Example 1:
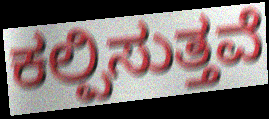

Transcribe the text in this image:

ಕಲ್ಪಿಸುತ್ತವೆ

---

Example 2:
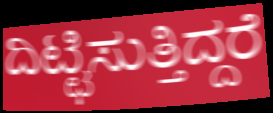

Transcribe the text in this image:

ದಿಟ್ಟಿಸುತ್ತಿದ್ದರೆ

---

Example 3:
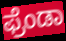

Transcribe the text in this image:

ಫ್ರೆಂಡಾ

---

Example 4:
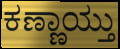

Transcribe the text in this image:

ಕಣ್ಣಾಯ್ತು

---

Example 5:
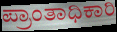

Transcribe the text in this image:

ಪ್ರಾಂತಾಧಿಕಾರಿ